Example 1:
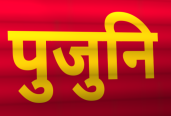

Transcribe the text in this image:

पुजुनि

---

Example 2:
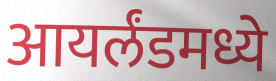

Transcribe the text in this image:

आयर्लंडमध्ये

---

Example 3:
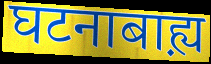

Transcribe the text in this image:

घटनाबाह्य़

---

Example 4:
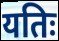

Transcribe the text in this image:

यतिः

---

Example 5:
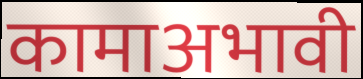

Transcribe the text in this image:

कामाअभावी